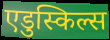
एडुस्किल्स